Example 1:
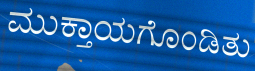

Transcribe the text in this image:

ಮುಕ್ತಾಯಗೊಂಡಿತು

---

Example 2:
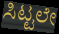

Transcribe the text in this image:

ಸಿಟ್ಟಲೇ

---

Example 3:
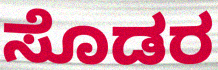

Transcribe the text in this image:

ಸೊಡರ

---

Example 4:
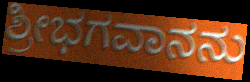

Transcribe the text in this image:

ಶ್ರೀಭಗವಾನನು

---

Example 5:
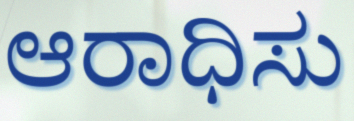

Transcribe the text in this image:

ಆರಾಧಿಸು